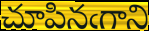
చూపినఁగాని